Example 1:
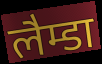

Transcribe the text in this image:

लैम्डा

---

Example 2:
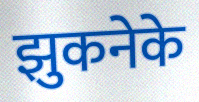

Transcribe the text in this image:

झुकनेके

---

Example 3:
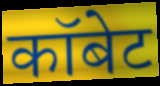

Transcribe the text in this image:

कॉबेट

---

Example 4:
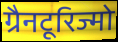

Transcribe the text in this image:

ग्रैनटूरिज्मो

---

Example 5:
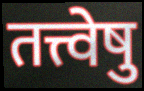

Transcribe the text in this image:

तत्त्वेषु